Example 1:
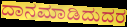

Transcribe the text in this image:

ದಾನಮಾಡಿದುದರ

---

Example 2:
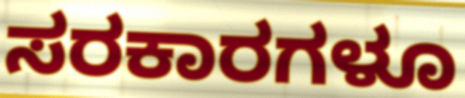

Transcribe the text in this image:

ಸರಕಾರಗಳೂ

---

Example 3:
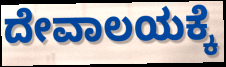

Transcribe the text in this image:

ದೇವಾಲಯಕ್ಕೆ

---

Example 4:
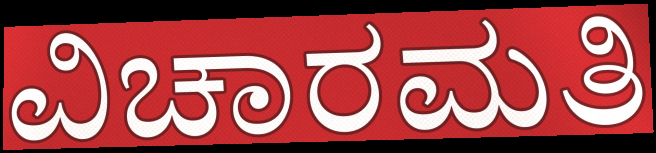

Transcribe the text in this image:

ವಿಚಾರಮತಿ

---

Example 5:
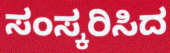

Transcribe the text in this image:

ಸಂಸ್ಕರಿಸಿದ